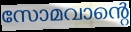
സോമവാന്റെ